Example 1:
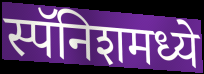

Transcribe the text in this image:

स्पॅनिशमध्ये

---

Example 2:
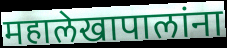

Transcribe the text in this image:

महालेखापालांना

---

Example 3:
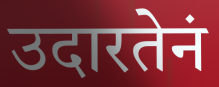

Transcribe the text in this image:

उदारतेनं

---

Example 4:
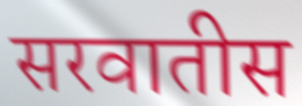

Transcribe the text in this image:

सरवातीस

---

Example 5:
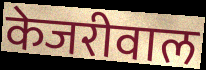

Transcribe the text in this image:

केजरीवाल